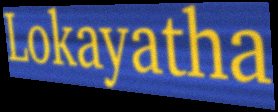
Lokayatha